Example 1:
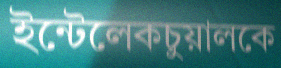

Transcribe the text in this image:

ইন্টেলেকচুয়ালকে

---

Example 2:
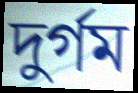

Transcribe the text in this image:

দুর্গম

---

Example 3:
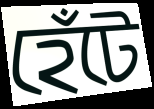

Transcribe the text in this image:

হেঁটে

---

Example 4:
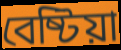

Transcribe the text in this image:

বেষ্টিয়া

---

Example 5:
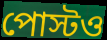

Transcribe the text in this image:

পোস্টও